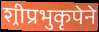
श्रीप्रभुकृपेने